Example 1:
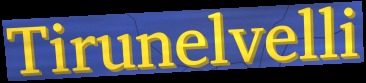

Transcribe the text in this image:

Tirunelvelli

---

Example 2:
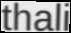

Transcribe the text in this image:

thali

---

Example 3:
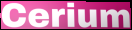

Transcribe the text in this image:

Cerium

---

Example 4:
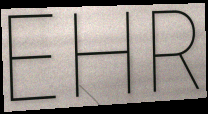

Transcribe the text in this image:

EHR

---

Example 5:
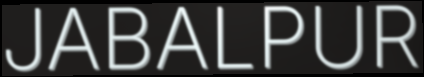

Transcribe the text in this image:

JABALPUR